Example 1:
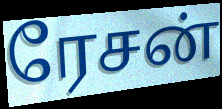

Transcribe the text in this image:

ரேசன்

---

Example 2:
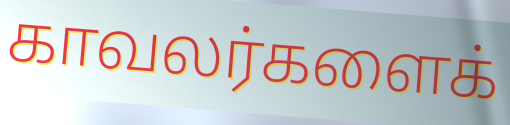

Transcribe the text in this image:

காவலர்களைக்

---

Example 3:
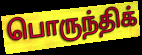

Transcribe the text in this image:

பொருந்திக்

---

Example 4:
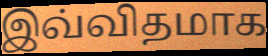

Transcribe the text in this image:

இவ்விதமாக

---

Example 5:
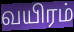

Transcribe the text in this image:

வயிரம்